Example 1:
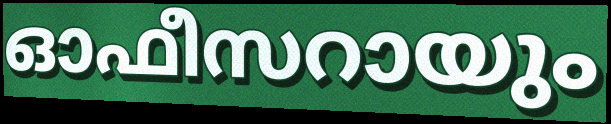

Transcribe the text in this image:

ഓഫീസറായും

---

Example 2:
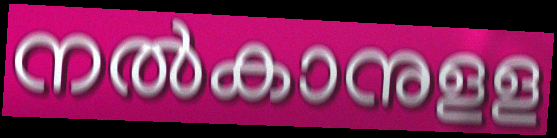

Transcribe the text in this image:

നൽകാനുളള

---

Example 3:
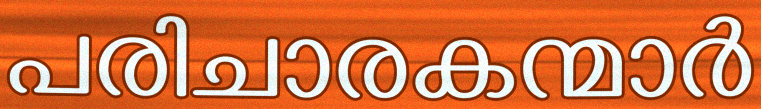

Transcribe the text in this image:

പരിചാരകന്മാർ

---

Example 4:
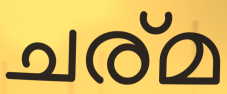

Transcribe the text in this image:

ചര്മ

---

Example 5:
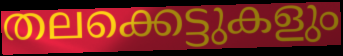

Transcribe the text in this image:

തലക്കെട്ടുകളും